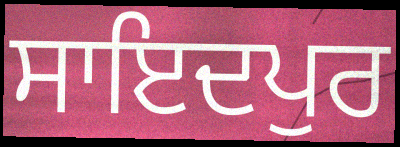
ਸਾਇਦਪੁਰ